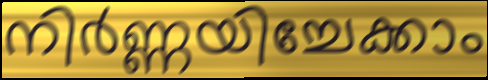
നിർണ്ണയിച്ചേക്കാം